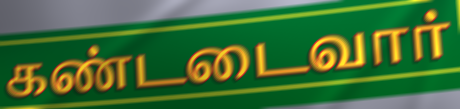
கண்டடைவார்